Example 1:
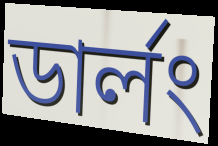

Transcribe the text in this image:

ডার্লং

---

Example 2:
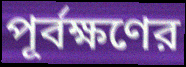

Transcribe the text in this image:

পূর্বক্ষণের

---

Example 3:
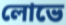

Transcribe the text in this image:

লোভে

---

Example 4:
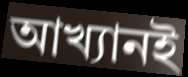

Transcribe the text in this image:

আখ্যানই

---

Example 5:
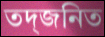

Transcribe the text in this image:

তদ্জনিত